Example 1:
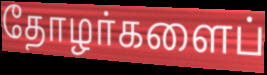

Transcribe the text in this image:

தோழர்களைப்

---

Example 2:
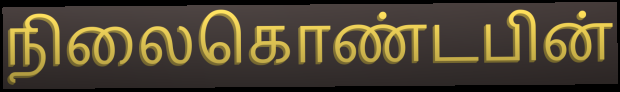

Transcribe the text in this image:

நிலைகொண்டபின்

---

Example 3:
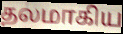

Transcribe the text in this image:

தலமாகிய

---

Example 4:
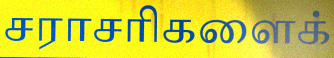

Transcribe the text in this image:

சராசரிகளைக்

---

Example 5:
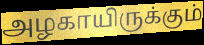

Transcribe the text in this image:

அழகாயிருக்கும்